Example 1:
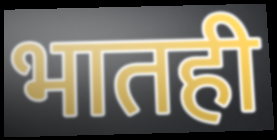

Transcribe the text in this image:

भातही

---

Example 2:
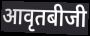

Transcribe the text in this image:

आवृतबीजी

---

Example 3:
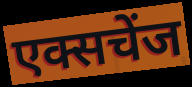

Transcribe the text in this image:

एक्सचेंज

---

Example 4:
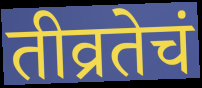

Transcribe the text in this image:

तीव्रतेचं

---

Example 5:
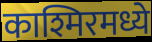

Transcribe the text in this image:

काश्मिरमध्ये